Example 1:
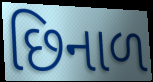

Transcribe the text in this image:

છિનાળ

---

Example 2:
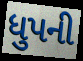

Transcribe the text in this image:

ધુપની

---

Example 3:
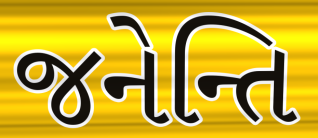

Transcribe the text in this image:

જનેન્તિ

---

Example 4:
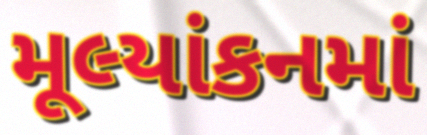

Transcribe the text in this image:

મૂલ્યાંકનમાં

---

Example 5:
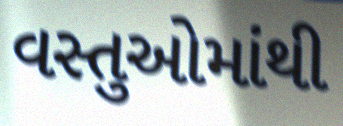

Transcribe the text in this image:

વસ્તુઓમાંથી